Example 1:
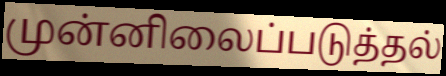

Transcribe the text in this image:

முன்னிலைப்படுத்தல்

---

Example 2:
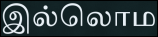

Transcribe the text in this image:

இல்லொம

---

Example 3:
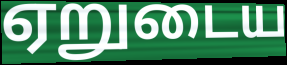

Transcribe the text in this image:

ஏறுடைய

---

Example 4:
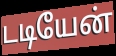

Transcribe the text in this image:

டடியேன்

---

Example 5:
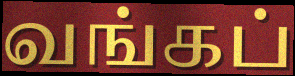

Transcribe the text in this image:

வங்கப்